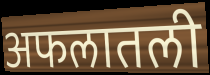
अफलातली